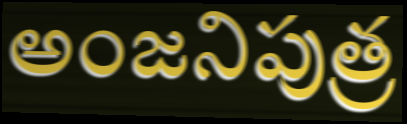
అంజనిపుత్ర